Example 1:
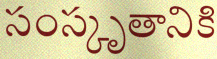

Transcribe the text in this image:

సంస్కృతానికి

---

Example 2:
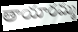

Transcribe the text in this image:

తాయారమ్మ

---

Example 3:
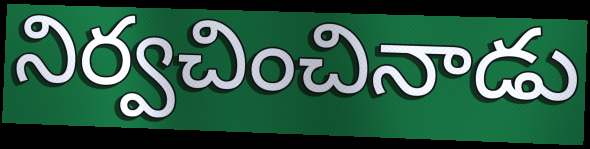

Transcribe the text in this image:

నిర్వచించినాడు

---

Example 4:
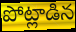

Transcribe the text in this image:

పోట్లాడిన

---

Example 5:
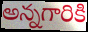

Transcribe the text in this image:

అన్నగారికి